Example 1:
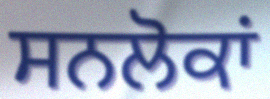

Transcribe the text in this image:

ਸਨਲੋਕਾਂ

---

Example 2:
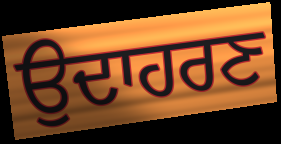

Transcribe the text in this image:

ਉਦਾਹਰਣ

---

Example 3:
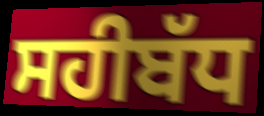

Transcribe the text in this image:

ਸਹੀਬੱਧ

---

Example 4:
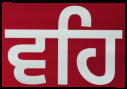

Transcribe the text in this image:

ਵਹਿ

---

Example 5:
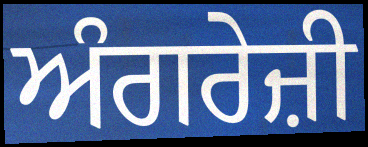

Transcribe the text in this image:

ਅੰਗਰੇਜ਼ੀ